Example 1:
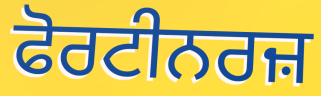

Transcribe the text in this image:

ਫੋਰਟੀਨਰਜ਼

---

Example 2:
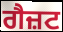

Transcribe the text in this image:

ਗੈਜ਼ਟ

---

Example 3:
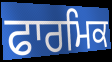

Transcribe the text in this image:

ਫਾਰਮਿਕ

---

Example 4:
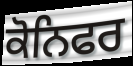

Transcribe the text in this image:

ਕੋਨਿਫਰ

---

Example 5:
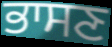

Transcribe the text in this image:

ਭਾਸਣ